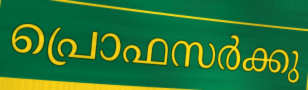
പ്രൊഫസർക്കു